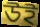
উই